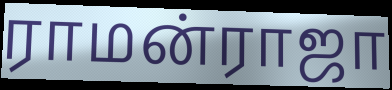
ராமன்ராஜா